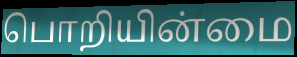
பொறியின்மை